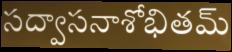
సద్వాసనాశోభితమ్